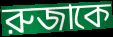
রুজাকে